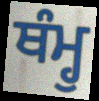
ਥੰਮ੍ਹ੍ਹੁ